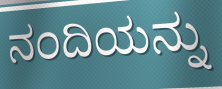
ನಂದಿಯನ್ನು